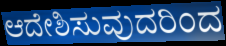
ಆದೇಶಿಸುವುದರಿಂದ